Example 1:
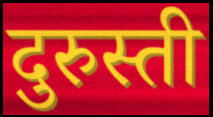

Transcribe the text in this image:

दुरुस्ती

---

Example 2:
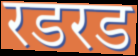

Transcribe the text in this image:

रडरड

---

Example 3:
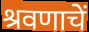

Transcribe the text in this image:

श्रवणाचें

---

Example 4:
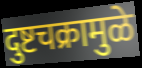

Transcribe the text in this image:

दुष्टचक्रामुळे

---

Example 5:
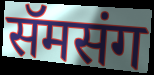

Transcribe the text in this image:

सॅमसंग